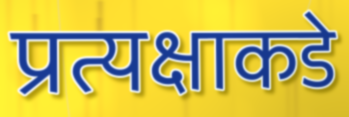
प्रत्यक्षाकडे